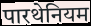
पारथेनियम